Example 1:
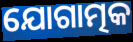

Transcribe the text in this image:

ଯୋଗାତ୍ମକ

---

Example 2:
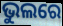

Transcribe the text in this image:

ଭୁଲରେ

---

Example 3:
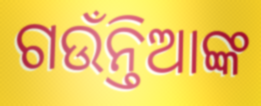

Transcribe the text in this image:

ଗଉଁନ୍ତିଆଙ୍କ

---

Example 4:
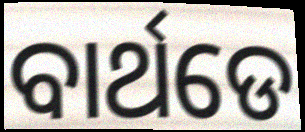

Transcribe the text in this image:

ବାର୍ଥଡେ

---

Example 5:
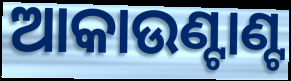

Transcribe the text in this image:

ଆକାଉଣ୍ଟାଣ୍ଟ